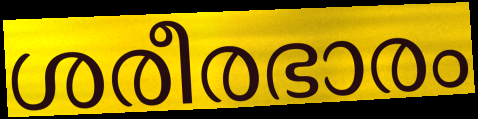
ശരീരഭാരം